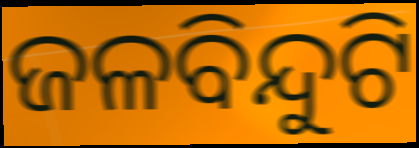
ଜଳବିନ୍ଦୁଟି